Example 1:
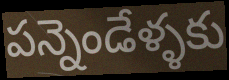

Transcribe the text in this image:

పన్నెండేళ్ళకు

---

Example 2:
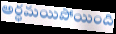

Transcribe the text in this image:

అర్ధమయిపోయింది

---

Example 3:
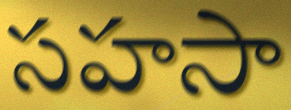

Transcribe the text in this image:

సహసా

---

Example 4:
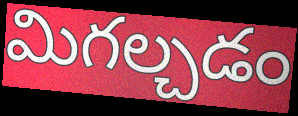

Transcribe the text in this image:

మిగల్చడం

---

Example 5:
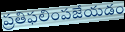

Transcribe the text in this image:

ప్రతిఫలింపజేయడం